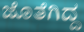
ಜೊತೆಗಿದ್ದ